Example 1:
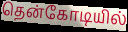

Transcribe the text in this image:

தென்கோடியில்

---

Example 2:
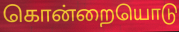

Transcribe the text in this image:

கொன்றையொடு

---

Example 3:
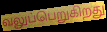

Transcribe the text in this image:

வலுப்பெறுகிறது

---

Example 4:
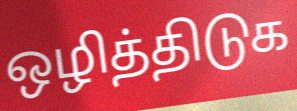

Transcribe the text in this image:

ஒழித்திடுக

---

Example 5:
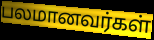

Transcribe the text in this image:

பலமானவர்கள்